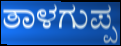
ತಾಳಗುಪ್ಪ